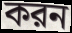
করন